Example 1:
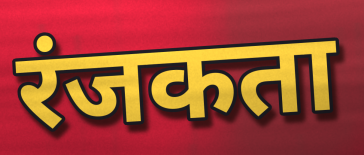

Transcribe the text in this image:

रंजकता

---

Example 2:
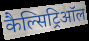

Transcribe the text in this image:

कैल्सिट्रिऑल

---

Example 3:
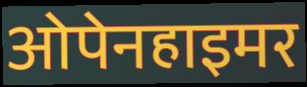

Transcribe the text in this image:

ओपेनहाइमर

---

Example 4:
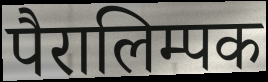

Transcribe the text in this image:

पैरालिम्पक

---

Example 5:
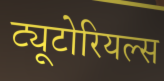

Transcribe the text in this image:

ट्यूटोरियल्स